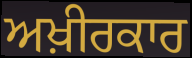
ਅਖ਼ੀਰਕਾਰ